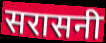
सरासनी